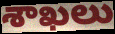
శాఖలు